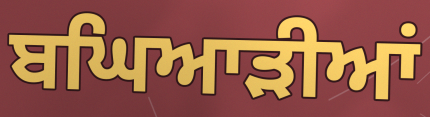
ਬਘਿਆੜੀਆਂ